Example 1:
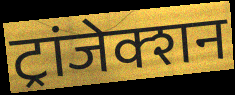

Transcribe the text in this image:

ट्रांजेक्शन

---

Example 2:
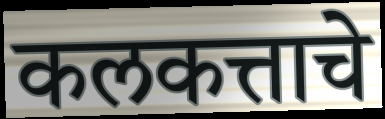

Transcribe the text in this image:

कलकत्ताचे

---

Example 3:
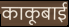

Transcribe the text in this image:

काकूबाई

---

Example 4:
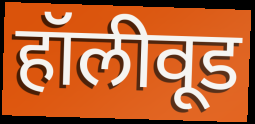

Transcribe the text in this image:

हॉलीवूड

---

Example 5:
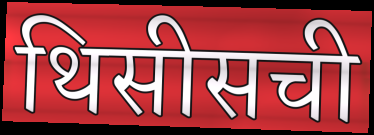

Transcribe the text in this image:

थिसीसची